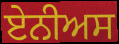
ਏਨੀਅਸ